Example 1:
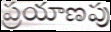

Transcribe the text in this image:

ప్రయాణపు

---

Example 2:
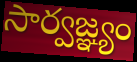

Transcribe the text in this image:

సార్వజ్ఞ్యం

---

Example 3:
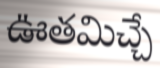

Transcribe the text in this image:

ఊతమిచ్చే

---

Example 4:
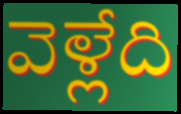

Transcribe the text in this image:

వెళ్లేది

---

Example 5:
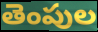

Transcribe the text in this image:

తెంపుల